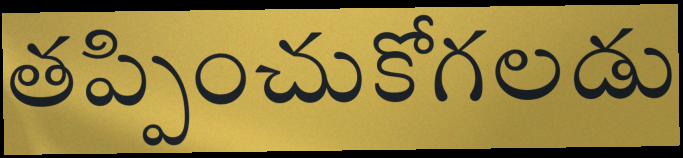
తప్పించుకోగలడు